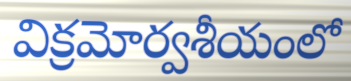
విక్రమోర్వశీయంలో